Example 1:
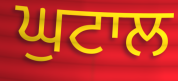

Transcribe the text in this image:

ਘੁਟਾਲ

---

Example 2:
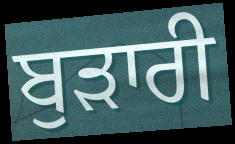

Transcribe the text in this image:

ਬੁੜਾਰੀ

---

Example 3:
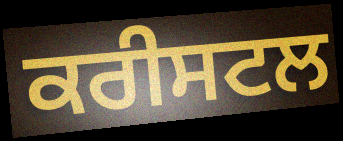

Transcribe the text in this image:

ਕਰੀਸਟਲ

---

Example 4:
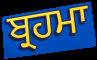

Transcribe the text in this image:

ਬ੍ਰਹਮਾ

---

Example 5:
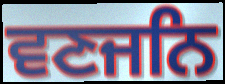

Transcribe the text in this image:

ਵਣਜਨਿ